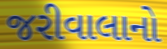
જરીવાલાનો